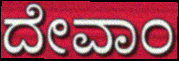
ದೇವಾಂ